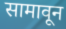
सामावून